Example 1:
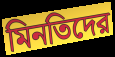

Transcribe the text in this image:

মিনতিদের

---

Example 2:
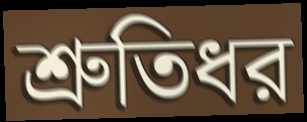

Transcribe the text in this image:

শ্রুতিধর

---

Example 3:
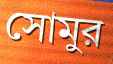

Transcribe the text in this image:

সোমুর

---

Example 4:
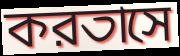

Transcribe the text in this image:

করতাসে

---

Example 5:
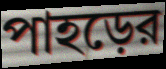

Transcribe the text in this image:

পাহড়ের